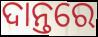
ଦାନ୍ତରେ